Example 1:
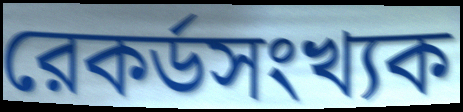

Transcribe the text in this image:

রেকর্ডসংখ্যক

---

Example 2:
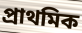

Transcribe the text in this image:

প্রাথমিক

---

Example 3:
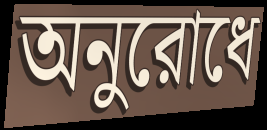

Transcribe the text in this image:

অনুরোধে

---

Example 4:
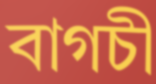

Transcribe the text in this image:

বাগচী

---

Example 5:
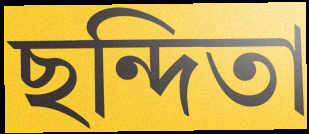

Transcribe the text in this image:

ছন্দিতা